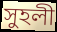
সুহলী